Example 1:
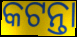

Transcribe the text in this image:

କଟନ୍ତା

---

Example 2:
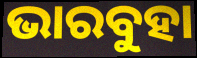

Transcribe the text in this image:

ଭାରବୁହା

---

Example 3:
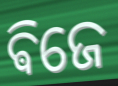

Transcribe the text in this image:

ଵିଜେ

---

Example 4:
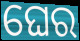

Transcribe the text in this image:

ଘେର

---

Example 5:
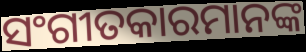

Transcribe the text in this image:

ସଂଗୀତକାରମାନଙ୍କ